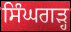
ਸਿੰਘਗੜ੍ਹ